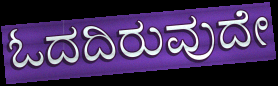
ಓದದಿರುವುದೇ